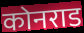
कोनराड